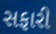
સફારી